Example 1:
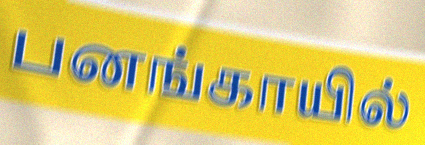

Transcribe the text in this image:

பனங்காயில்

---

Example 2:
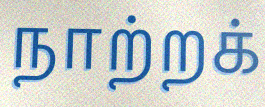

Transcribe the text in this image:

நாற்றக்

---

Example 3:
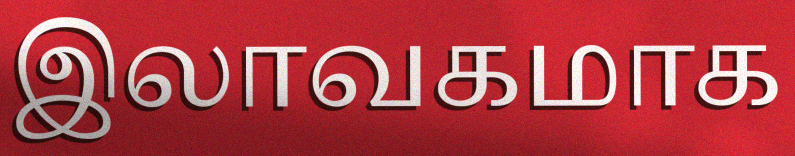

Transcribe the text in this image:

இலாவகமாக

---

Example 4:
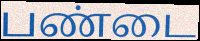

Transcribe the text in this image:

பண்டை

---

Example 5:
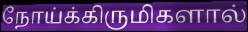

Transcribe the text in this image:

நோய்க்கிருமிகளால்